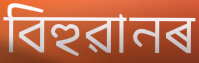
বিহুৱানৰ